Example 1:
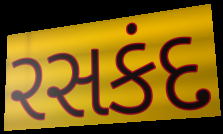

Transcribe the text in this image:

રસકંદ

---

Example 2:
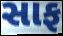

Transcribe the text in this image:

સાફ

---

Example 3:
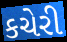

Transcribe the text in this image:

કચેરી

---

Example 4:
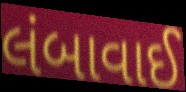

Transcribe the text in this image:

લંબાવાઈ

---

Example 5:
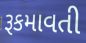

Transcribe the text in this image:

રૂકમાવતી